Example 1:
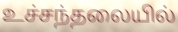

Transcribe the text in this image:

உச்சந்தலையில்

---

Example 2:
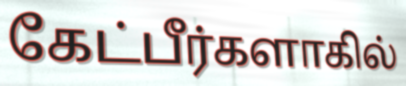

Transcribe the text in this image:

கேட்பீர்களாகில்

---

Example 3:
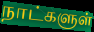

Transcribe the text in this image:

நாட்களுள்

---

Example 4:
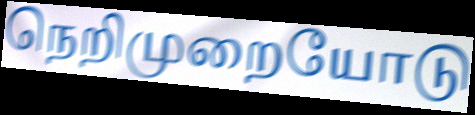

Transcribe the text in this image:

நெறிமுறையோடு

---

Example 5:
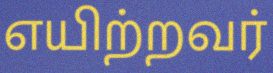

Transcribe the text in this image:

எயிற்றவர்